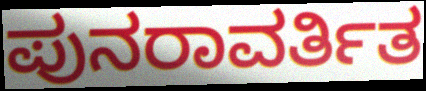
ಪುನರಾವರ್ತಿತ